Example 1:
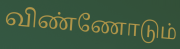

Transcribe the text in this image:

விண்ணோடும்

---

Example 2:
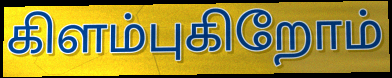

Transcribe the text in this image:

கிளம்புகிறோம்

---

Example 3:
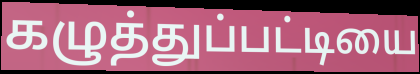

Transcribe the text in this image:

கழுத்துப்பட்டியை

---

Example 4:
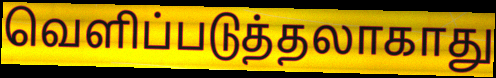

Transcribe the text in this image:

வெளிப்படுத்தலாகாது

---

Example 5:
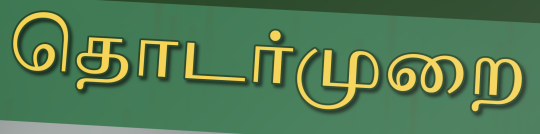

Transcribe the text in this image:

தொடர்முறை